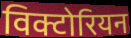
विक्टोरियन